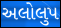
અલોલુપ